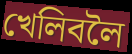
খেলিবলৈ